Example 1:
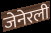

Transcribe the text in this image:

जेनेरली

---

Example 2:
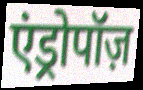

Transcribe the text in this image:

एंड्रोपॉज़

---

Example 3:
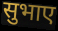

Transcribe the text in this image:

सुभाए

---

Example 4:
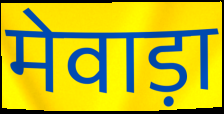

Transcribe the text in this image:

मेवाड़ा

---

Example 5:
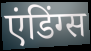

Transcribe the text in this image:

एंडिंग्स